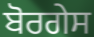
ਬੋਰਗੇਸ